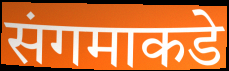
संगमाकडे